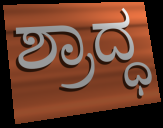
ಶ್ರಾದ್ಧ